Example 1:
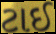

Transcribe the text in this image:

ટાઈ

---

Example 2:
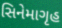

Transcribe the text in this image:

સિનેમાગૃહ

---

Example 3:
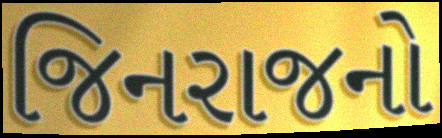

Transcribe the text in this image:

જિનરાજનો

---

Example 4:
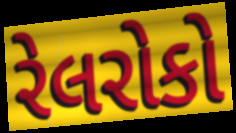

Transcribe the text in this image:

રેલરોકો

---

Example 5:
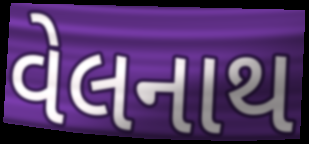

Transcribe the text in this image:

વેલનાથ